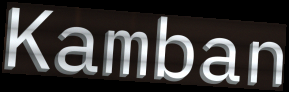
Kamban